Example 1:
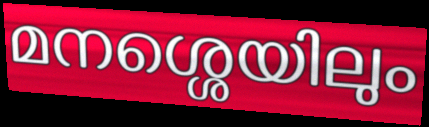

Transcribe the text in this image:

മനശ്ശെയിലും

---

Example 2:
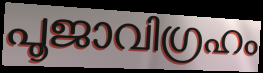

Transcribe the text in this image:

പൂജാവിഗ്രഹം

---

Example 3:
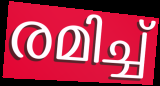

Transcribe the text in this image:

രമിച്ച്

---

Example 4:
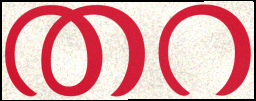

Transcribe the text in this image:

തറ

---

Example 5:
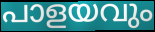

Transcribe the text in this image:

പാളയവും